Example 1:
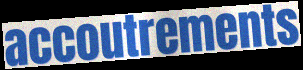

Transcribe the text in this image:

accoutrements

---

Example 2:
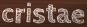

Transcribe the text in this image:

cristae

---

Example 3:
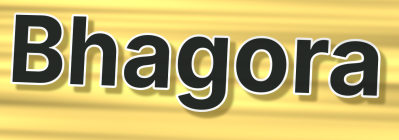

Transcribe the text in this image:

Bhagora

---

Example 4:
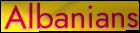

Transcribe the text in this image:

Albanians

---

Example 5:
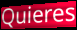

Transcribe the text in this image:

Quieres